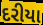
દરીયા